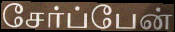
சேர்ப்பேன்